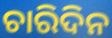
ଚାରିଦିନ